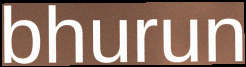
bhurun